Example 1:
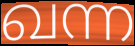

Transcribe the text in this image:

ഖന്ന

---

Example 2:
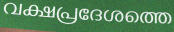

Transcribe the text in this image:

വക്ഷപ്രദേശത്തെ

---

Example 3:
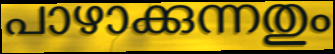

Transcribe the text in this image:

പാഴാക്കുന്നതും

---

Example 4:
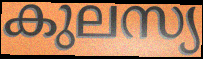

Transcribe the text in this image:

കുലസ്യ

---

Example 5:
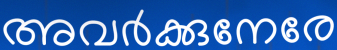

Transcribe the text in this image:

അവർക്കുനേരേ